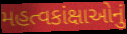
મહત્વકાંક્ષાઓનું